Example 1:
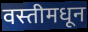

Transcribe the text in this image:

वस्तीमधून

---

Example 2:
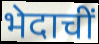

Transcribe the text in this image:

भेदाचीं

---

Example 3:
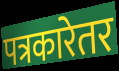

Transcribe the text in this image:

पत्रकारेतर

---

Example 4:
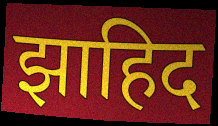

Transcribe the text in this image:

झाहिद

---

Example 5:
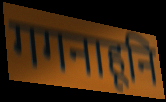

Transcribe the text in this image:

गगनाहूनि